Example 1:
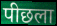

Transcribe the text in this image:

पीछला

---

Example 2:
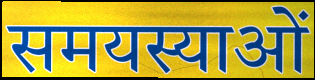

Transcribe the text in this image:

समयस्याओं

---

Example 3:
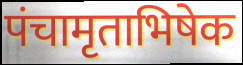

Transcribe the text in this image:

पंचामृताभिषेक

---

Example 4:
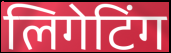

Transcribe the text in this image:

लिगेटिंग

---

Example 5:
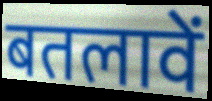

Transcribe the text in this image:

बतलावें